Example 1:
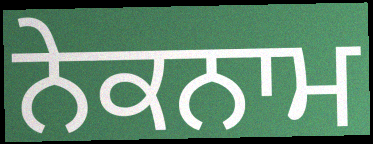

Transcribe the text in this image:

ਨੇਕਨਾਮ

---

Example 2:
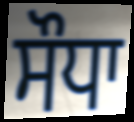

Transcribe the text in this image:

ਸੌਧਾ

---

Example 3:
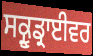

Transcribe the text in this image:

ਸਕ੍ਰੂਡ੍ਰਾਈਵਰ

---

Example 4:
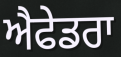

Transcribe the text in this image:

ਐਫੇਡਰਾ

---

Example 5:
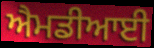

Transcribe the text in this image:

ਐਮਡੀਆਈ